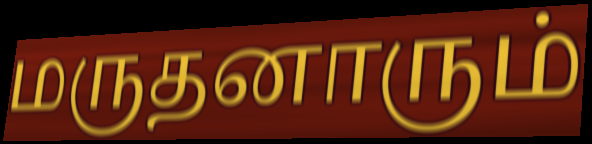
மருதனாரும்